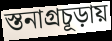
স্তনাগ্রচূড়ায়